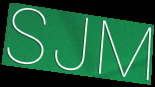
SJM